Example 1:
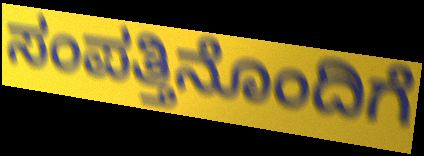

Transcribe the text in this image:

ಸಂಪತ್ತಿನೊಂದಿಗೆ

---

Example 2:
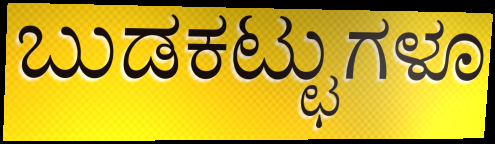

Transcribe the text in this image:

ಬುಡಕಟ್ಟುಗಳೂ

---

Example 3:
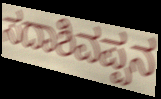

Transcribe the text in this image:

ಸದಾಶಿವಪ್ಪನ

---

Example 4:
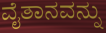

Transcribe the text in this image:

ವೈತಾನವನ್ನು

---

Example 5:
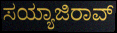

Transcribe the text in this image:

ಸಯ್ಯಾಜಿರಾವ್